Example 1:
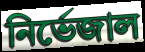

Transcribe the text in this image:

নির্ভেজাল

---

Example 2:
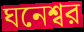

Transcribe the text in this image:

ঘনেশ্বর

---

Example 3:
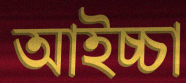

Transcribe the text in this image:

আইচ্চা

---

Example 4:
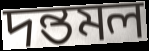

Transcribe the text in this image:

দন্তমল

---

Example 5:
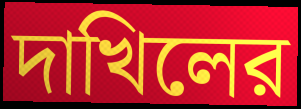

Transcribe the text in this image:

দাখিলের